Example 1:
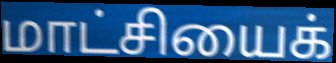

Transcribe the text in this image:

மாட்சியைக்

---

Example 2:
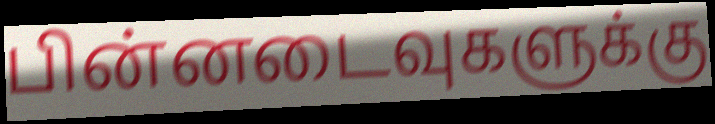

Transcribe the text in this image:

பின்னடைவுகளுக்கு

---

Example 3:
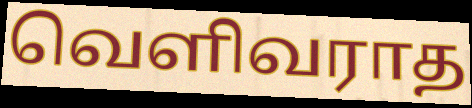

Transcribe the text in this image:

வெளிவராத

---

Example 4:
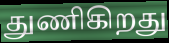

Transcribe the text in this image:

துணிகிறது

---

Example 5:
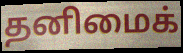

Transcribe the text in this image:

தனிமைக்